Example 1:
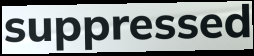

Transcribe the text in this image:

suppressed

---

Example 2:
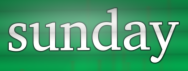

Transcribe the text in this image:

sunday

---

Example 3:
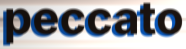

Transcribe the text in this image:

peccato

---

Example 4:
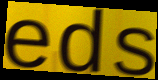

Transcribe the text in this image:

eds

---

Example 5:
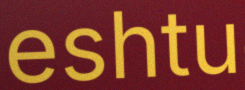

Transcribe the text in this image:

eshtu